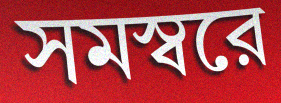
সমস্বরে